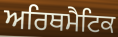
ਅਰਿਥਮੈਟਿਕ